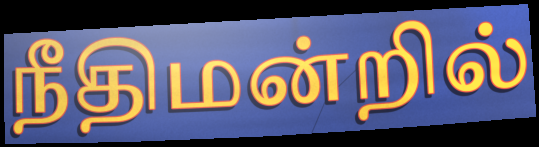
நீதிமன்றில்